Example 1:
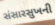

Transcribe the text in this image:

સંસારસુખની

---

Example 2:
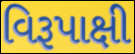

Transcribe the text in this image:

વિરૂપાક્ષી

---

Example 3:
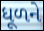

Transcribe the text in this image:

ધૂળને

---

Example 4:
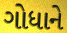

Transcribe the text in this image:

ગોધાને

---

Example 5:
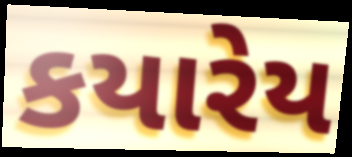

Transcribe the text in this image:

કયારેય